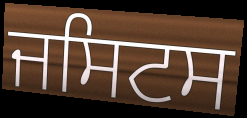
ਜਸਿਟਸ